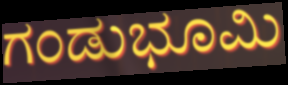
ಗಂಡುಭೂಮಿ